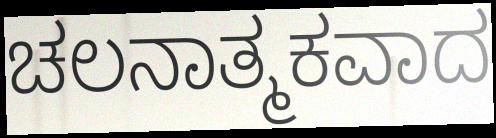
ಚಲನಾತ್ಮಕವಾದ